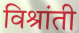
विश्रांती